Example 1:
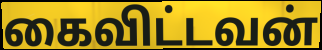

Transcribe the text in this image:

கைவிட்டவன்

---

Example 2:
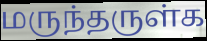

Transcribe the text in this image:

மருந்தருள்க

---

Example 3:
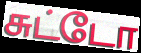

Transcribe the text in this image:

சுட்டோ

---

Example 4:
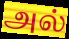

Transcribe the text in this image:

அல்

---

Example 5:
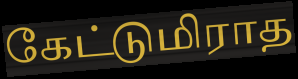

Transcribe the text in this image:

கேட்டுமிராத